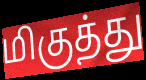
மிகுத்து